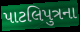
પાટલિપુત્રના